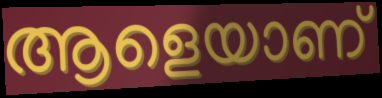
ആളെയാണ്